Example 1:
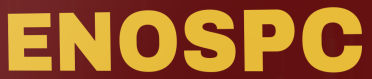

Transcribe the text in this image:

ENOSPC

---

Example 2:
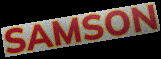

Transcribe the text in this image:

SAMSON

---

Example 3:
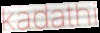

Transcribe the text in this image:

kadathi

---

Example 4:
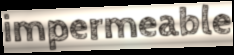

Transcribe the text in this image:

impermeable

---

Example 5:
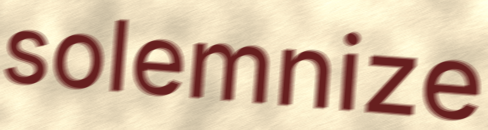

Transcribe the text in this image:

solemnize